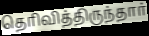
தெரிவித்திருந்தார்